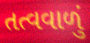
તત્વવાળું